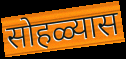
सोहळ्यास